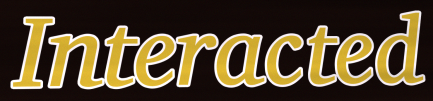
Interacted